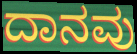
ದಾನವು